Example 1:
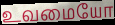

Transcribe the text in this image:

உவமையோ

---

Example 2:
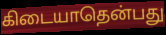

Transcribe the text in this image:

கிடையாதென்பது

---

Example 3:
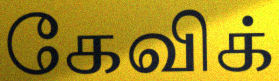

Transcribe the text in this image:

கேவிக்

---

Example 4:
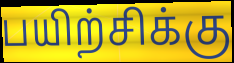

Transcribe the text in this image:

பயிற்சிக்கு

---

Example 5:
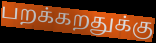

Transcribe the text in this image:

பறக்கறதுக்கு